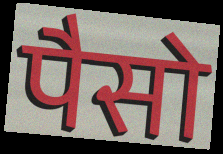
पैसो